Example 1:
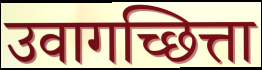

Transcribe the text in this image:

उवागच्छित्ता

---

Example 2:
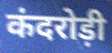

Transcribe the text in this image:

कंदरोड़ी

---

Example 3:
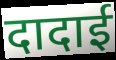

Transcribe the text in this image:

दादाई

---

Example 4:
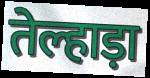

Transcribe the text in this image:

तेल्हाड़ा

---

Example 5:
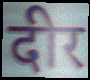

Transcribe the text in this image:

दीर